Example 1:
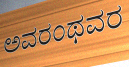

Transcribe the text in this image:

ಅವರಂಥವರ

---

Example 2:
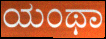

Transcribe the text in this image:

ಯಂಥಾ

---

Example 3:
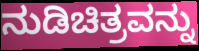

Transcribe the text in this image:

ನುಡಿಚಿತ್ರವನ್ನು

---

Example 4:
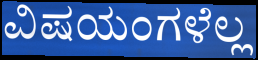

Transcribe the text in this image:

ವಿಷಯಂಗಳೆಲ್ಲ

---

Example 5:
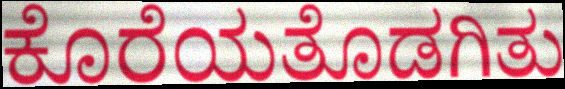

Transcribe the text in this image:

ಕೊರೆಯತೊಡಗಿತು